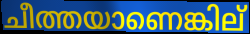
ചീത്തയാണെങ്കില്